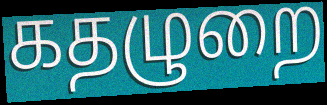
கதழுறை